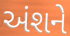
અંશને